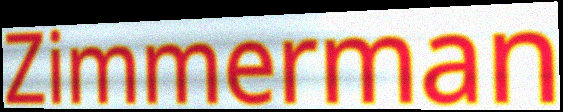
Zimmerman